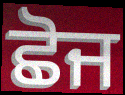
ਛੋਜ